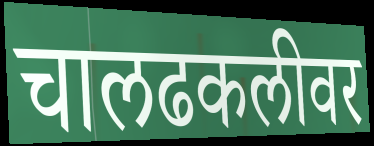
चालढकलीवर